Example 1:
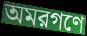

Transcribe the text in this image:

অমরগণে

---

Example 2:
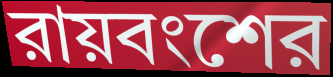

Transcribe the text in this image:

রায়বংশের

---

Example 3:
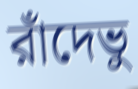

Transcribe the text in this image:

রাঁদেভু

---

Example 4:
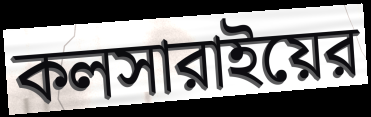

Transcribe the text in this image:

কলসারাইয়ের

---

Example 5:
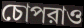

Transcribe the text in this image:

চোপরাও